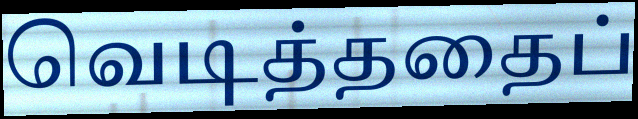
வெடித்ததைப்